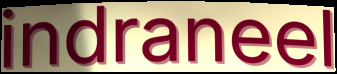
indraneel